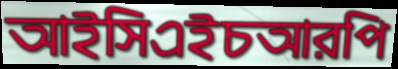
আইসিএইচআরপি